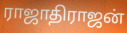
ராஜாதிராஜன்